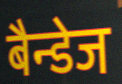
बैन्डेज